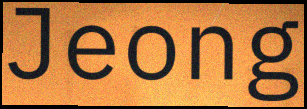
Jeong